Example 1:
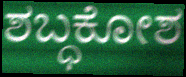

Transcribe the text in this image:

ಶಬ್ಧಕೋಶ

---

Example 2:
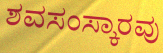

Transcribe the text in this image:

ಶವಸಂಸ್ಕಾರವು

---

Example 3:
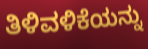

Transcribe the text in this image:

ತಿಳಿವಳಿಕೆಯನ್ನು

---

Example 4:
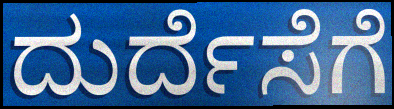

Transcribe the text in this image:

ದುರ್ದೆಸೆಗೆ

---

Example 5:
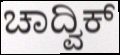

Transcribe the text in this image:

ಚಾದ್ವಿಕ್